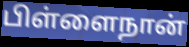
பிள்ளைநான்